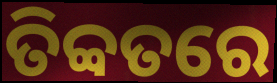
ତିବ୍ବତରେ